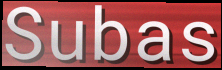
Subas